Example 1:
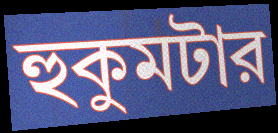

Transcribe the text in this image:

হুকুমটার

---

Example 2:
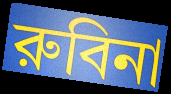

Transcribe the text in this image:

রুবিনা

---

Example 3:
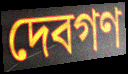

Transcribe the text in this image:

দেবগণ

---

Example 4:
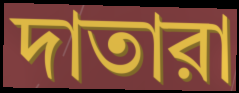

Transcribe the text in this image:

দাতারা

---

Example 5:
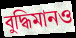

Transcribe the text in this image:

বুদ্ধিমানও